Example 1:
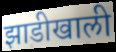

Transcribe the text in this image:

झाडीखाली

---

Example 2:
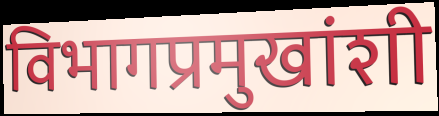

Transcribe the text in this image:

विभागप्रमुखांशी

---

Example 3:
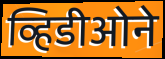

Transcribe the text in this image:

व्हिडीओने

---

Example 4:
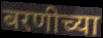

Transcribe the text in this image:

बरणीच्या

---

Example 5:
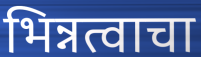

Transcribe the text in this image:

भिन्नत्वाचा